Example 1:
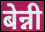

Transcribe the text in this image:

बेन्नी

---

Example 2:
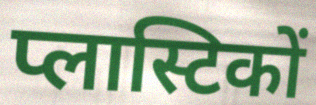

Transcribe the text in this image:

प्लास्टिकों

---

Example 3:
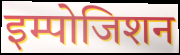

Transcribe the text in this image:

इम्पोजिशन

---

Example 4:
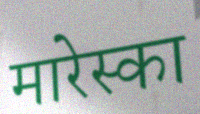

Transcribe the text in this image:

मारेस्का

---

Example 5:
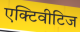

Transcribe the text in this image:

एक्टिवीटिज